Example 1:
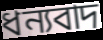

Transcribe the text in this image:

ধন্যবাদ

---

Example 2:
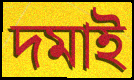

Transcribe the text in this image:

দমাই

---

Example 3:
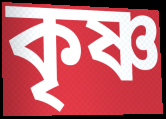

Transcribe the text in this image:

কৃষ্ণ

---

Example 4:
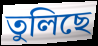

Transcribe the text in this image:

তুলিছে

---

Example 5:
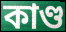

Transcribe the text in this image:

কাণ্ড